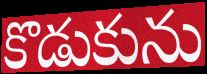
కొడుకును